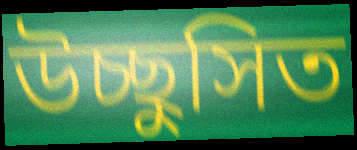
উচ্ছুসিত